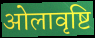
ओलावृष्टि